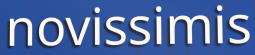
novissimis